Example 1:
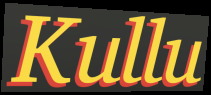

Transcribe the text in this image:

Kullu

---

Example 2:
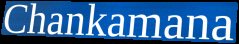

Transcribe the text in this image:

Chankamana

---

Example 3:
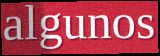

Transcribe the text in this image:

algunos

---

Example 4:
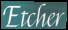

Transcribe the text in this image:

Etcher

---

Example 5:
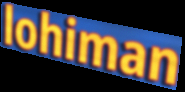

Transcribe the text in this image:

lohiman